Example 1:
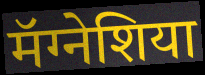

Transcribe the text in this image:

मॅग्‍नेशिया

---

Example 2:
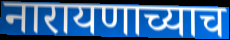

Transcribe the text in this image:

नारायणाच्याच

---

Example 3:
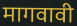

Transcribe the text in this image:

मागवावी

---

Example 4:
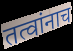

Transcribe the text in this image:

तत्वांनाच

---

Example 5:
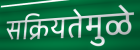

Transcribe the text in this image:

सक्रियतेमुळे